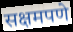
सक्षमपणे